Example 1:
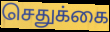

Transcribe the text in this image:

செதுக்கை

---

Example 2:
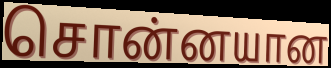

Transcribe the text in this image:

சொன்னயான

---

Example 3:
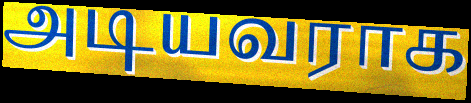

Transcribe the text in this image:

அடியவராக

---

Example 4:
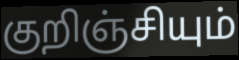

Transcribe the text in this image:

குறிஞ்சியும்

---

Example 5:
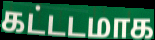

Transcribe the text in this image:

கட்டடமாக